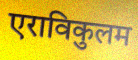
एराविकुलम